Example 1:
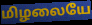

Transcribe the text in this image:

மிழலையே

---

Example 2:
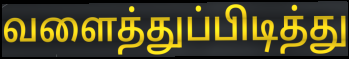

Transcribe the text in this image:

வளைத்துப்பிடித்து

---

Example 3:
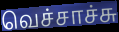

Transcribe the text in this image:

வெச்சாச்சு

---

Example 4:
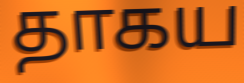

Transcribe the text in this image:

தாகய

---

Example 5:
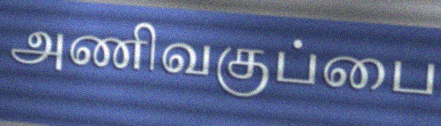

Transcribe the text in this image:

அணிவகுப்பை